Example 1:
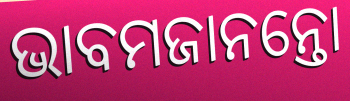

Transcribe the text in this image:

ଭାବମଜାନନ୍ତୋ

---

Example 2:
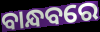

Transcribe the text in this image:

ବାନ୍ଧବରେ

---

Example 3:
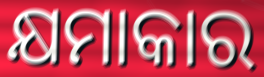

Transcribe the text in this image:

କ୍ଷମାକାର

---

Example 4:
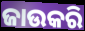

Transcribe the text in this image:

ଜାଉକରି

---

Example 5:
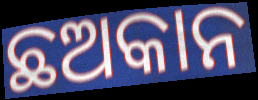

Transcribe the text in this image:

ଛଅକାନ